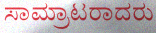
ಸಾಮ್ರಾಟರಾದರು